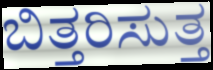
ಬಿತ್ತರಿಸುತ್ತ